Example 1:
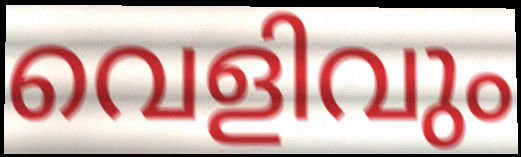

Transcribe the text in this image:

വെളിവും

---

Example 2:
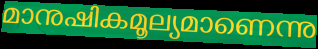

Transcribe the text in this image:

മാനുഷികമൂല്യമാണെന്നു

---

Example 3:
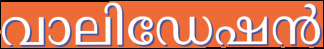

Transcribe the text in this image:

വാലിഡേഷൻ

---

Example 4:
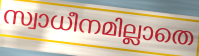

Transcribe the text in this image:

സ്വാധീനമില്ലാതെ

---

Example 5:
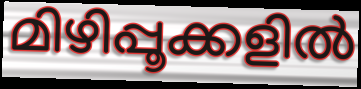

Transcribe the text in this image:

മിഴിപ്പൂക്കളിൽ